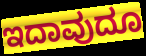
ಇದಾವುದೂ